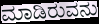
ಮಾಡಿರುವನು